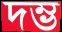
দম্ভ